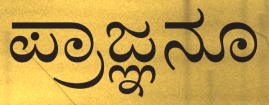
ಪ್ರಾಜ್ಞನೂ